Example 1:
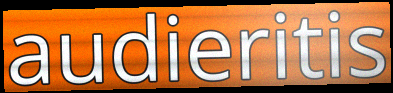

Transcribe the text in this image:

audieritis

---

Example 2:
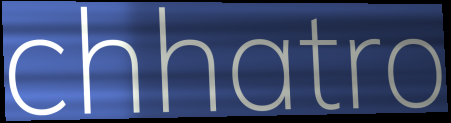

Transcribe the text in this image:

chhatro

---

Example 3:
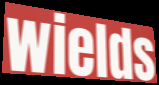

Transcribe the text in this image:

wields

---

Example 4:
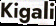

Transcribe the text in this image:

Kigali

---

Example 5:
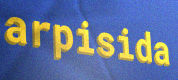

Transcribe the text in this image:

arpisida